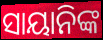
ସାୟାନିଙ୍କ